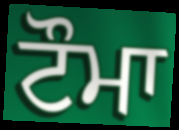
ਟੌਮਾ